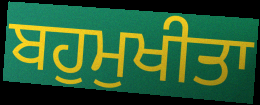
ਬਹੁਮੁਖੀਤਾ